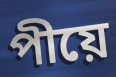
পীয়ে